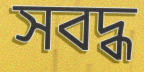
সবদ্ধ